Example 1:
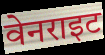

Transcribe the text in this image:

वेनराइट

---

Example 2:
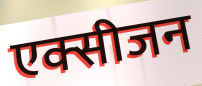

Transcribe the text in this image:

एक्सीजन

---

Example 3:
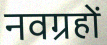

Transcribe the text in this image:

नवग्रहों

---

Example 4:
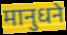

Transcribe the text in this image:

मानुधने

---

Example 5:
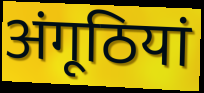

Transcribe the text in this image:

अंगूठियां